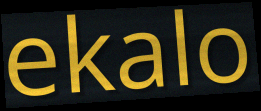
ekalo